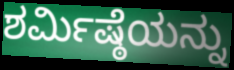
ಶರ್ಮಿಷ್ಠೆಯನ್ನು